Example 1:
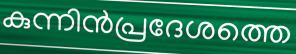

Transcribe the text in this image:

കുന്നിൻപ്രദേശത്തെ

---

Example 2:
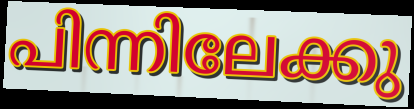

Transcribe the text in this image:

പിന്നിലേക്കു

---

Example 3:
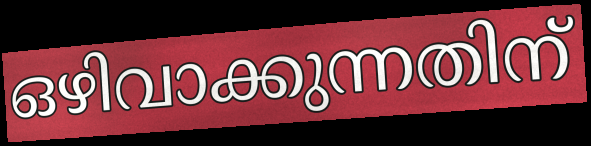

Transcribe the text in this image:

ഒഴിവാക്കുന്നതിന്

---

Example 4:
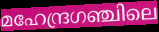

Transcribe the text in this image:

മഹേന്ദ്രഗഞ്ചിലെ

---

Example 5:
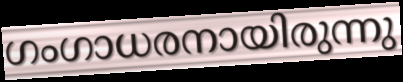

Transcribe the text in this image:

ഗംഗാധരനായിരുന്നു